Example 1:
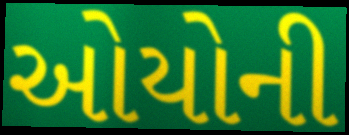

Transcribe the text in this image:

ઓયોની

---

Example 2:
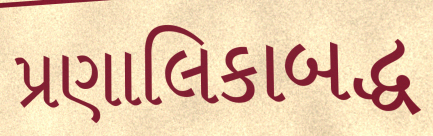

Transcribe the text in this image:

પ્રણાલિકાબદ્ધ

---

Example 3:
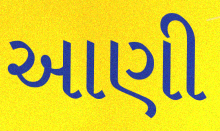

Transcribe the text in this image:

આણી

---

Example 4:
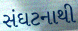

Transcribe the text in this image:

સંઘટનાથી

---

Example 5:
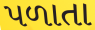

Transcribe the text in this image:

પળાતા